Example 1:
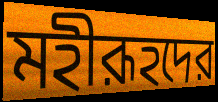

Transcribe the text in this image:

মহীরূহদের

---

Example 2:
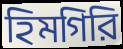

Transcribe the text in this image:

হিমগিরি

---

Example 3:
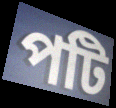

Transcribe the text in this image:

পটি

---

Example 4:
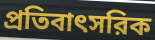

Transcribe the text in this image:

প্রতিবাৎসরিক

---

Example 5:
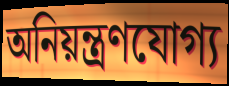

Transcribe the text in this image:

অনিয়ন্ত্রণযোগ্য